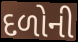
દળોની